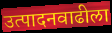
उत्पादनवाढीला